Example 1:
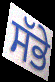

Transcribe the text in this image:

ਸੱਭੇ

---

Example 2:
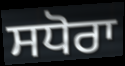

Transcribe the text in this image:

ਸਧੋਰਾ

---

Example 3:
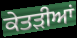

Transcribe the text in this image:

ਕੇਤੜੀਆਂ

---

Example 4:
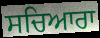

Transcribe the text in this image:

ਸਚਿਆਰਾ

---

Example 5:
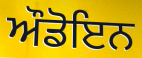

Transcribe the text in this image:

ਔਡੋਇਨ